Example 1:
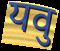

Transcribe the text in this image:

यवु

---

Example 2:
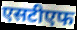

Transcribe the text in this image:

एसटीएफ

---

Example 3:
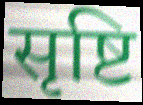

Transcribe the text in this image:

सृष्टि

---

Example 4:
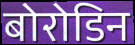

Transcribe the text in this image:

बोरोडिन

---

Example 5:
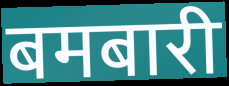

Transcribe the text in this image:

बमबारी